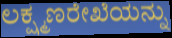
ಲಕ್ಷ್ಮಣರೇಖೆಯನ್ನು